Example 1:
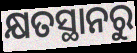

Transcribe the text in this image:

କ୍ଷତସ୍ଥାନରୁ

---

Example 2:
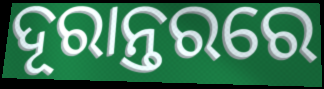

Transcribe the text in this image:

ଦୂରାନ୍ତରରେ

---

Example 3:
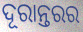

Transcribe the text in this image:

ଦୂରାନ୍ତରର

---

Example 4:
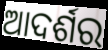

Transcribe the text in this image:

ଆଦର୍ଶର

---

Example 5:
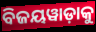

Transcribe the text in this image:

ବିଜୟୱାଡ଼ାକୁ